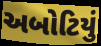
અબોટિયું